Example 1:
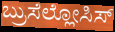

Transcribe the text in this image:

ಬ್ರುಸೆಲ್ಲೋಸಿಸ್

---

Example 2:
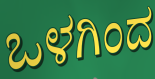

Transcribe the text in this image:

ಒಳಗಿಂದ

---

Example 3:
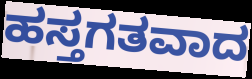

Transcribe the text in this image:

ಹಸ್ತಗತವಾದ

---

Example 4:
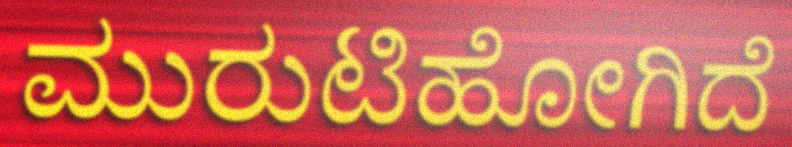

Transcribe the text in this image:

ಮುರುಟಿಹೋಗಿದೆ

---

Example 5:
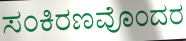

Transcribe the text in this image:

ಸಂಕಿರಣವೊಂದರ